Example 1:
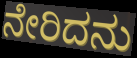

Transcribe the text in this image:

ನೇರಿದನು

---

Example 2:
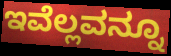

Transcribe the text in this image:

ಇವೆಲ್ಲವನ್ನೂ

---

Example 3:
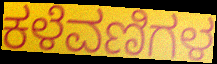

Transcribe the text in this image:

ಕಳೆವಣಿಗಳ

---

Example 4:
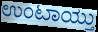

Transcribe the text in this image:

ಉಂಟಾಯ್ತು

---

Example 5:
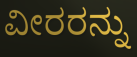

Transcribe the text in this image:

ವೀರರನ್ನು